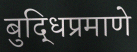
बुद्धिप्रमाणे